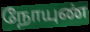
நோயுண்